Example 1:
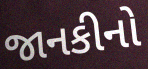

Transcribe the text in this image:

જાનકીનો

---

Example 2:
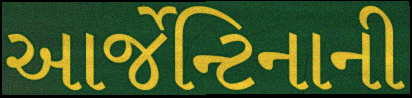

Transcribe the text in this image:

આર્જેન્ટિનાની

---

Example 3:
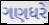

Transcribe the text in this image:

ગણધરે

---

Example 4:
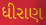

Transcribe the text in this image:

ધીરાણ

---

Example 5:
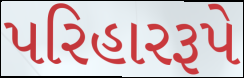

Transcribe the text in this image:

પરિહારરૂપે